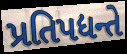
પ્રતિપદ્યન્તે